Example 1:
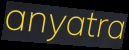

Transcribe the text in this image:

anyatra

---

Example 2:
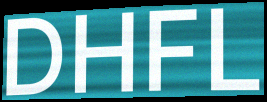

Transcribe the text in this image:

DHFL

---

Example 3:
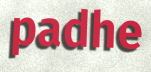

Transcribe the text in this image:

padhe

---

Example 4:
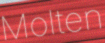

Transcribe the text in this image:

Molten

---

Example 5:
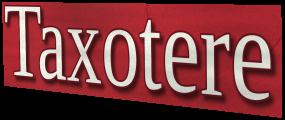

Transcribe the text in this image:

Taxotere